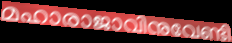
മഹാരാജാവിനുവേണ്ടി